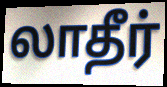
லாதீர்